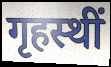
गृहस्थीं